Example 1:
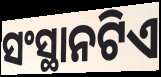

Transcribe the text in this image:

ସଂସ୍ଥାନଟିଏ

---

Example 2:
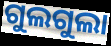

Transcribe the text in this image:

ଗୁଲଗୁଲା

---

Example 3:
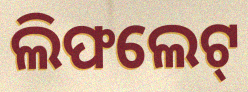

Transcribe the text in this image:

ଲିଫଲେଟ୍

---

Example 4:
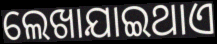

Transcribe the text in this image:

ଲେଖାଯାଇଥାଏ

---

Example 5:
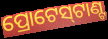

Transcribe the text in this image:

ପ୍ରୋଟେସ୍‌ଟାଣ୍ଟ